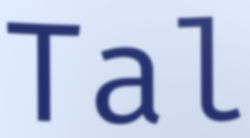
Tal